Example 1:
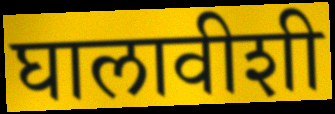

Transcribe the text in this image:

घालावीशी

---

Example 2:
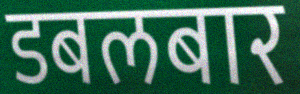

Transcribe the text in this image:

डबलबार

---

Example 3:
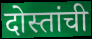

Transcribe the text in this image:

दोस्तांची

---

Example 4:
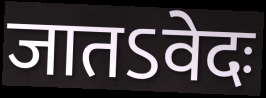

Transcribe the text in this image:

जातऽवेदः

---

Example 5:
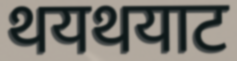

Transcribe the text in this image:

थयथयाट